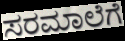
ಸರಮಾಲೆಗೆ